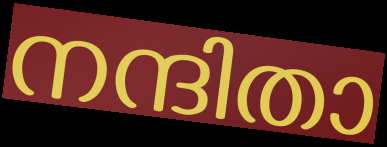
നന്ദിതാ